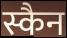
स्‍कैन